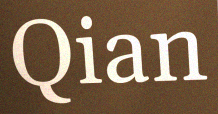
Qian